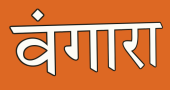
वंगारा